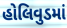
હોલિવુડમાં